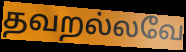
தவறல்லவே